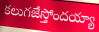
కలుగజేస్తోందయ్యా